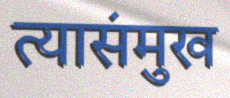
त्यासंमुख